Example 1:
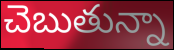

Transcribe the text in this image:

చెబుతున్నా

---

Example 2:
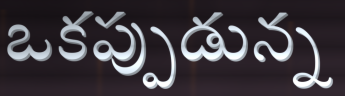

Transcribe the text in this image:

ఒకప్పుడున్న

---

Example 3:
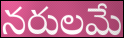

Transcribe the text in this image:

నరులమే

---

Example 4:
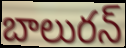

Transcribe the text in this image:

బాలురన్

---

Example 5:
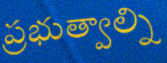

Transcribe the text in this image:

ప్రభుత్వాల్ని